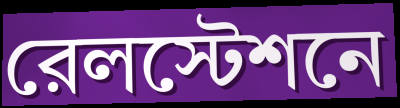
রেলস্টেশনে